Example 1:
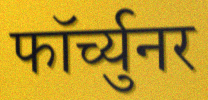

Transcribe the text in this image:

फॉर्च्युनर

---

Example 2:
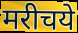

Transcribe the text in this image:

मरीचये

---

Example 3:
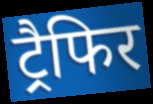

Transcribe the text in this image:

ट्रैफिर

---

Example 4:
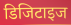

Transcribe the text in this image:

डिजिटाइज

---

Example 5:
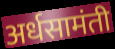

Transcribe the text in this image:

अर्धसामंती